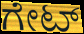
ಗೇಟ್